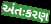
અંતઃકરણ